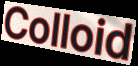
Colloid